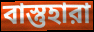
বাস্তুহারা